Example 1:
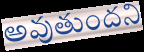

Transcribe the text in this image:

అవుతుందని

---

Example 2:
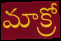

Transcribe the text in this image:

మాక్రో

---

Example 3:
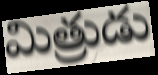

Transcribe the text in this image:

మిత్రుడు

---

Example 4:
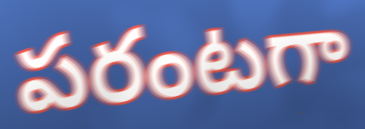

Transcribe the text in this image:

పరంటగా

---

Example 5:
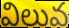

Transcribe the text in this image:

విలువ